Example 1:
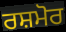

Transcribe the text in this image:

ਰਸ਼ਮੋਰ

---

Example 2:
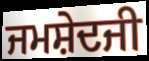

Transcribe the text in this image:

ਜਮਸ਼ੇਦਜੀ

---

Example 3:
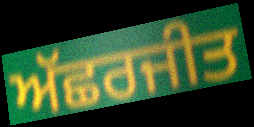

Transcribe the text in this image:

ਅੱਛਰਜੀਤ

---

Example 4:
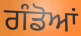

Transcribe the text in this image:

ਗੰਡੋਆਂ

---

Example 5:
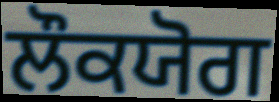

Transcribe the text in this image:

ਲੌਕਯੋਗ